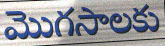
మొగసాలకు